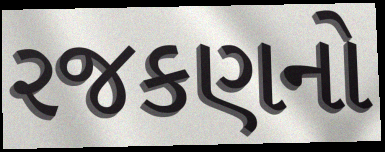
રજકણનો